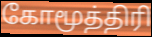
கோமூத்திரி